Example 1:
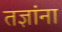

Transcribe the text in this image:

तज्ञांना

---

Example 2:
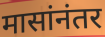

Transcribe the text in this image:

मासांनंतर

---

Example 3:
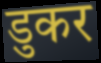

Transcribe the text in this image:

डुकर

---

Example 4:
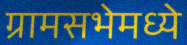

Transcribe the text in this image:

ग्रामसभेमध्ये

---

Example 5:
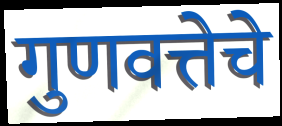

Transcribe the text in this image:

गुणवत्तेचे